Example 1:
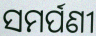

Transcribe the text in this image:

ସମର୍ପଣୀ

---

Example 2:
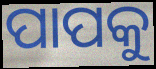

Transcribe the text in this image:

ପାପକୁ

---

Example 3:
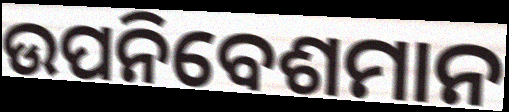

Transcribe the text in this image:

ଉପନିବେଶମାନ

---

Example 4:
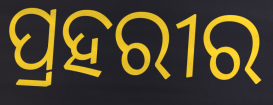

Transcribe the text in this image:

ପ୍ରହରୀର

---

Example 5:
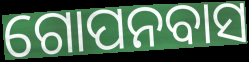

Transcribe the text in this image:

ଗୋପନବାସ